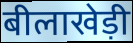
बीलाखेड़ी